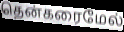
தென்கரைமேல்